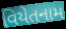
વિયેતનામ